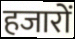
हजारों